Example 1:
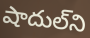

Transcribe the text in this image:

షాదుల్‌ని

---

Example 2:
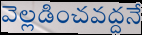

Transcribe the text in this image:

వెల్లడించవద్దనే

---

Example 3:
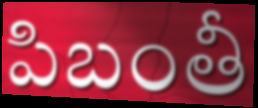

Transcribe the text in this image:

పిబంతీ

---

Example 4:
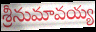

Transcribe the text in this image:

శ్రీనుమావయ్య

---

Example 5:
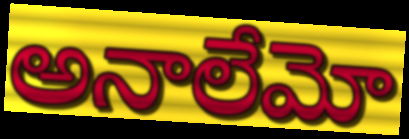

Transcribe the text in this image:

అనాలేమో